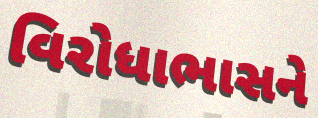
વિરોધાભાસને